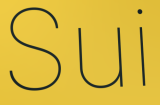
Sui